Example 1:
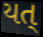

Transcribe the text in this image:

યત્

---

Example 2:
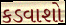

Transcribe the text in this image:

કડવાશો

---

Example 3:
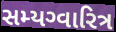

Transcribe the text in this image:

સમ્યગ્વારિત્ર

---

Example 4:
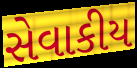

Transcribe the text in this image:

સેવાકીય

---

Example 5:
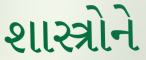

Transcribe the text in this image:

શાસ્ત્રોને